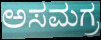
ಅಸಮಗ್ರ